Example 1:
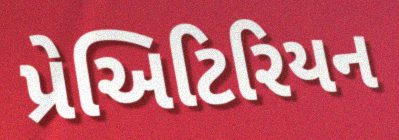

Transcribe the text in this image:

પ્રેઅિટિરિયન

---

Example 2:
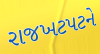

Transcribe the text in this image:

રાજખટપટને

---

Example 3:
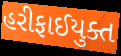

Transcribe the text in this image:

હરીફાઈયુક્ત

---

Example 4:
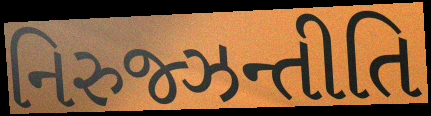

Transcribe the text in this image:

નિરુજ્ઝન્તીતિ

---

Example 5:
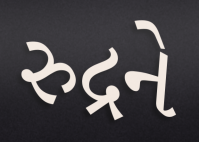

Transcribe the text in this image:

રુદ્રને